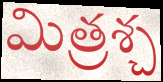
మిత్రశ్చ